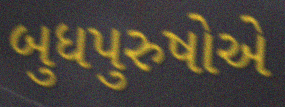
બુધપુરુષોએ